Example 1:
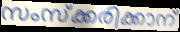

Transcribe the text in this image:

സംസ്ക്കരിക്കാന്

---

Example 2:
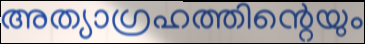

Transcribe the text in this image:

അത്യാഗ്രഹത്തിന്റെയും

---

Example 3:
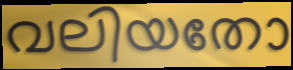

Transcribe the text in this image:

വലിയതോ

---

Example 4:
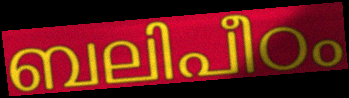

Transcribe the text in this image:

ബലിപീഠം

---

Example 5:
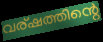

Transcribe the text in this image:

വര്ഷത്തിന്റെ